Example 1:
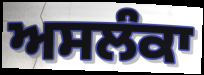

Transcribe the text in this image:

ਅਸਲੰਕਾ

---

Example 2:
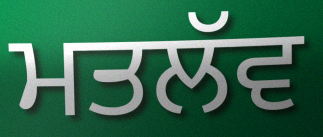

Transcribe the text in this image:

ਮਤਲੱਵ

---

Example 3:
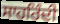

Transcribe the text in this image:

ਸਾਹਰਿੰਦੀ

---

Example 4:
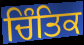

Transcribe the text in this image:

ਚਿੰਤਿਕ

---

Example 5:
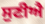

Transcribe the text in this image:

ਸੁਣੀਐ